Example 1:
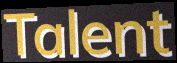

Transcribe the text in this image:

Talent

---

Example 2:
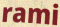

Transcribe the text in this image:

rami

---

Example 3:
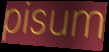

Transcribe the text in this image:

pisum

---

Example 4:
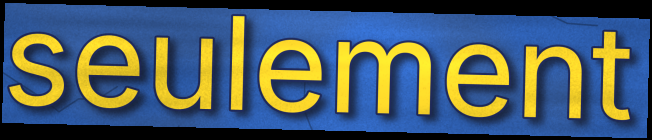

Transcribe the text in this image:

seulement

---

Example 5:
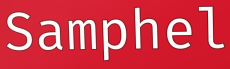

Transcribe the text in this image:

Samphel